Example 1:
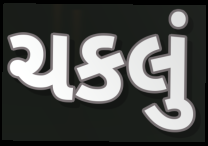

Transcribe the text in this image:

ચકલું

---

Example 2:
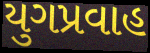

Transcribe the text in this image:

યુગપ્રવાહ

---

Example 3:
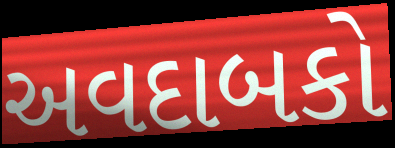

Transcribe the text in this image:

અવદાબકો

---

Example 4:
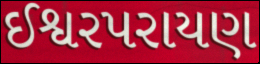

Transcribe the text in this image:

ઈશ્વરપરાયણ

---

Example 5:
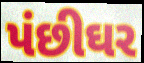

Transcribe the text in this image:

પંછીઘર